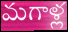
మగాళ్ల